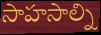
సాహసాల్ని